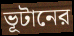
ভূটানের